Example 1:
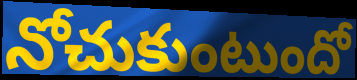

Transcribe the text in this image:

నోచుకుంటుందో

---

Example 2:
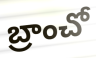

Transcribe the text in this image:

బ్రాంచో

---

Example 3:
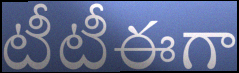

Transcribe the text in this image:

టీటీఈగా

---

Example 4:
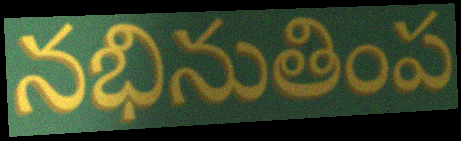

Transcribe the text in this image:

నభినుతింప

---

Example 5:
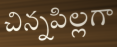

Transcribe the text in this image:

చిన్నపిల్లగా